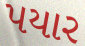
પયાર